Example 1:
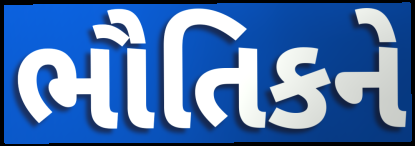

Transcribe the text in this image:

ભૌતિકને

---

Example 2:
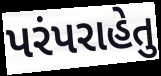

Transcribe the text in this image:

પરંપરાહેતુ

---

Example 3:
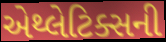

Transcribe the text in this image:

એથ્લેટિક્સની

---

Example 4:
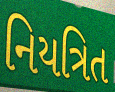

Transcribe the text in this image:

નિયત્રિત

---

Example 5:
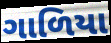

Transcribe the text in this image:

ગાળિયા